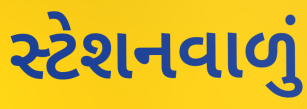
સ્ટેશનવાળું